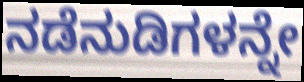
ನಡೆನುಡಿಗಳನ್ನೇ